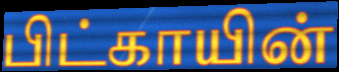
பிட்காயின்